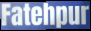
Fatehpur